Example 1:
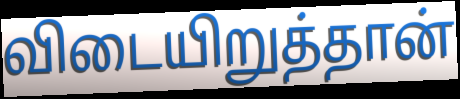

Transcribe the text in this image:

விடையிறுத்தான்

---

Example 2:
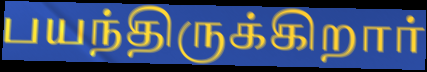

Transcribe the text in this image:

பயந்திருக்கிறார்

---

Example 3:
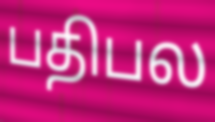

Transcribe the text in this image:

பதிபல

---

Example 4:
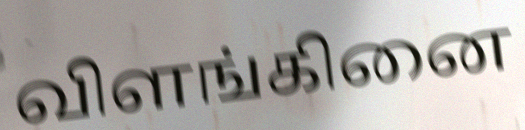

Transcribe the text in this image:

விளங்கினை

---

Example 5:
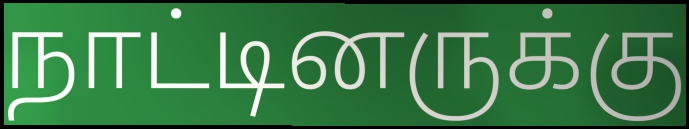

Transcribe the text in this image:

நாட்டினருக்கு